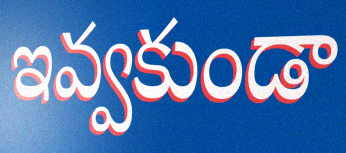
ఇవ్వకుండా